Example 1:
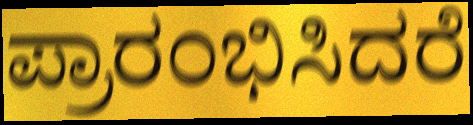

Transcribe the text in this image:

ಪ್ರಾರಂಭಿಸಿದರೆ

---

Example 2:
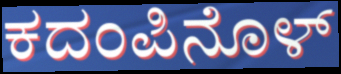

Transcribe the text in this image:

ಕದಂಪಿನೊಳ್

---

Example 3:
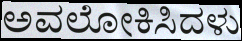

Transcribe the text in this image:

ಅವಲೋಕಿಸಿದಳು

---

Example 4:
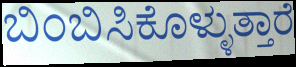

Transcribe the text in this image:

ಬಿಂಬಿಸಿಕೊಳ್ಳುತ್ತಾರೆ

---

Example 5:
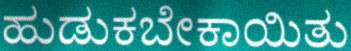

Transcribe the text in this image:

ಹುಡುಕಬೇಕಾಯಿತು